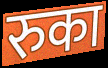
रुका